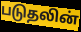
படுதலின்